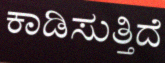
ಕಾಡಿಸುತ್ತಿದೆ